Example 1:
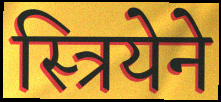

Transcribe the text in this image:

स्त्रियेने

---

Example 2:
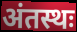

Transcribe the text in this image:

अंतस्थः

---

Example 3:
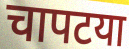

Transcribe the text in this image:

चापटया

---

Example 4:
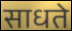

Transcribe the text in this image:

साधते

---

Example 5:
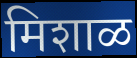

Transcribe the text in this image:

मिशाळ